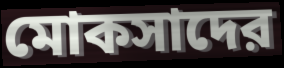
মোকসাদের